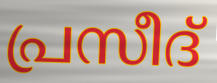
പ്രസീദ്